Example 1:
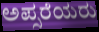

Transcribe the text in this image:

ಅಪ್ಸರೆಯರು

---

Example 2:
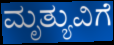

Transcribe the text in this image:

ಮೃತ್ಯುವಿಗೆ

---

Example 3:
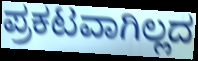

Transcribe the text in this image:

ಪ್ರಕಟವಾಗಿಲ್ಲದ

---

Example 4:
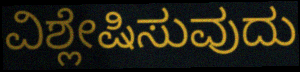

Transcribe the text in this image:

ವಿಶ್ಲೇಷಿಸುವುದು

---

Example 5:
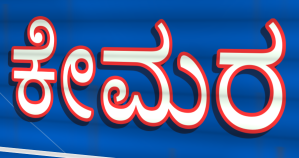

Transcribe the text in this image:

ಕೇಮರ